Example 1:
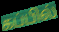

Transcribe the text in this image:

கப்பில்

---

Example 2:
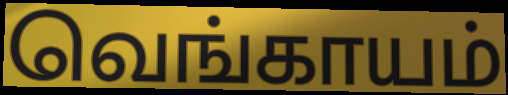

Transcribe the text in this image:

வெங்காயம்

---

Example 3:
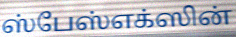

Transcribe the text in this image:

ஸ்பேஸ்எக்ஸின்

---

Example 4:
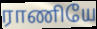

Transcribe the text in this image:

ராணியே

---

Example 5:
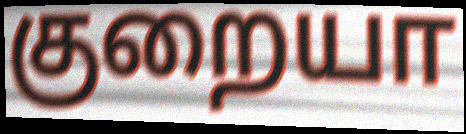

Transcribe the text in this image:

குறையா